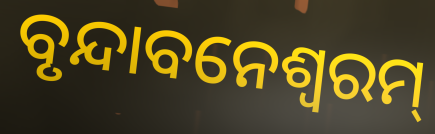
ବୃନ୍ଦାବନେଶ୍ୱରମ୍